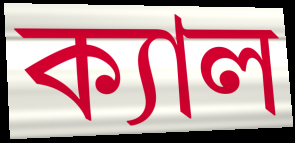
ক্যাল